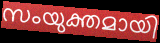
സംയുക്തമായി